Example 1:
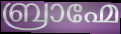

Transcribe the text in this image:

ബ്രാഹ്മേ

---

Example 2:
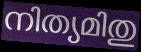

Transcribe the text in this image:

നിത്യമിതു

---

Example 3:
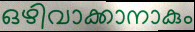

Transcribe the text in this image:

ഒഴിവാക്കാനാകും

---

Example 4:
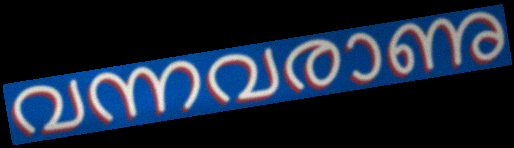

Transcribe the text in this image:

വന്നവരാണു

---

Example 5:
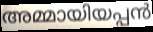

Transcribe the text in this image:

അമ്മായിയപ്പൻ